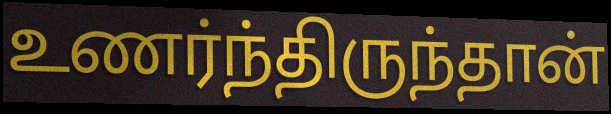
உணர்ந்திருந்தான்